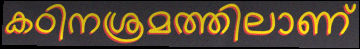
കഠിനശ്രമത്തിലാണ്